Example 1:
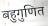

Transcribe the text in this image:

बहुगुणित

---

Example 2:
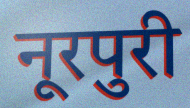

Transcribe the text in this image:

नूरपुरी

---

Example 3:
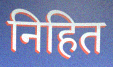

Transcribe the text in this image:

निहित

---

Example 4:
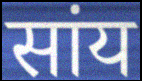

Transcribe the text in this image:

सांय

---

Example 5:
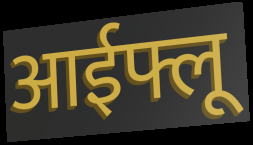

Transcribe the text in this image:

आईफ्लू